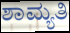
ಶಾಮ್ಯತಿ